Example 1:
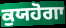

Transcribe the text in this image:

ਕੁਯਹੋਗਾ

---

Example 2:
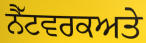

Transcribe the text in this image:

ਨੈੱਟਵਰਕਅਤੇ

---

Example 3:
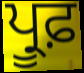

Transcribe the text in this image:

ਪ੍ਰੂਫ਼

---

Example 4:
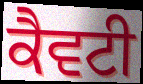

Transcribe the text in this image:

ਕੈਵਟੀ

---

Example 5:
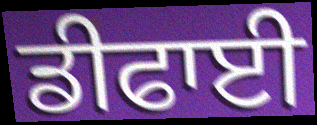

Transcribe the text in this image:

ਡੀਫਾਈ